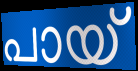
പായ്